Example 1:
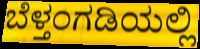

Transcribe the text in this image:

ಬೆಳ್ತಂಗಡಿಯಲ್ಲಿ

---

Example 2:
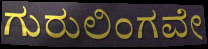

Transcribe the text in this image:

ಗುರುಲಿಂಗವೇ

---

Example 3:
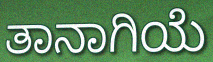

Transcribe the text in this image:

ತಾನಾಗಿಯೆ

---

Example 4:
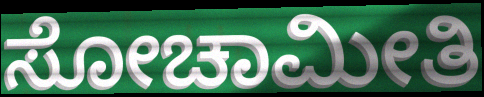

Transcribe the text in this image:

ಸೋಚಾಮೀತಿ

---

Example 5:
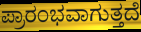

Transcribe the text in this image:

ಪ್ರಾರಂಭವಾಗುತ್ತದೆ